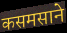
कसमसाने